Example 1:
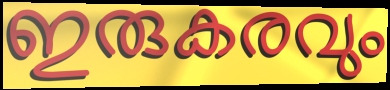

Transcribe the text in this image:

ഇരുകരവും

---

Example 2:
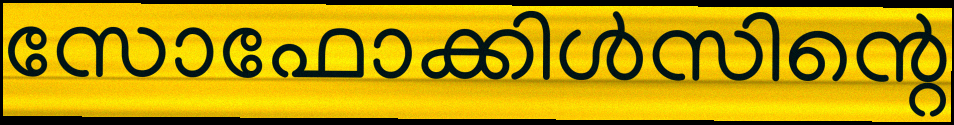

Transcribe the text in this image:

സോഫോക്കിൾസിന്റെ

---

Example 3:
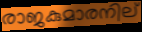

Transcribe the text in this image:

രാജകുമാരനില്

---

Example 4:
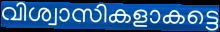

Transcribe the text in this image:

വിശ്വാസികളാകട്ടെ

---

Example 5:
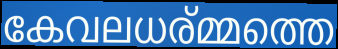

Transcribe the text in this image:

കേവലധര്മ്മത്തെ